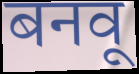
बनवू